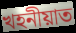
খহনীয়াত